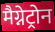
मैग्नेट्रोन